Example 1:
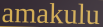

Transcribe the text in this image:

amakulu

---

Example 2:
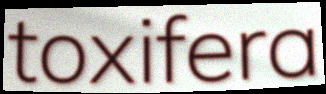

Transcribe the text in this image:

toxifera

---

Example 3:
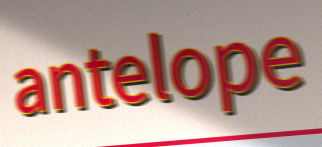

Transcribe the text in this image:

antelope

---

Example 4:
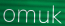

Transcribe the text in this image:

omuk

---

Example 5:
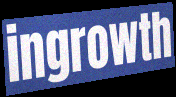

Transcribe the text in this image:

ingrowth